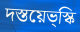
দস্তয়েভ্স্কি